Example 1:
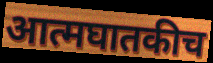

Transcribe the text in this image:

आत्मघातकीच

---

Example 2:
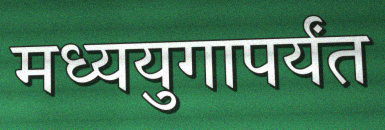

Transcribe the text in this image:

मध्ययुगापर्यंत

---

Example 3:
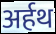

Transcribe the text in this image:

अर्हथ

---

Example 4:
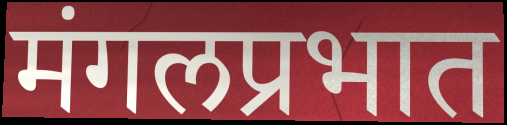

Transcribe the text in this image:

मंगलप्रभात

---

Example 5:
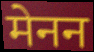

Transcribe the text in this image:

मेनन